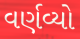
વર્ણવ્યો